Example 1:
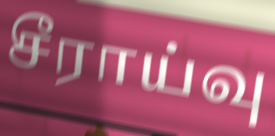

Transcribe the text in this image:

சீராய்வு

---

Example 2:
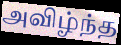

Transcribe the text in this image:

அவிழ்ந்த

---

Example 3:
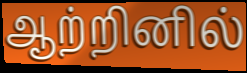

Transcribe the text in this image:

ஆற்றினில்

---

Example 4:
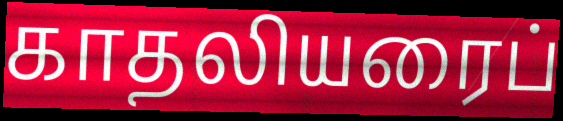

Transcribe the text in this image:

காதலியரைப்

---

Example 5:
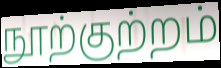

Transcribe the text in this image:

நூற்குற்றம்